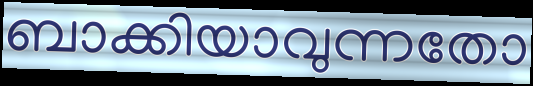
ബാക്കിയാവുന്നതോ